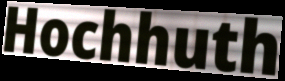
Hochhuth